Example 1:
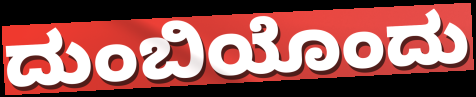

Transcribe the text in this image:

ದುಂಬಿಯೊಂದು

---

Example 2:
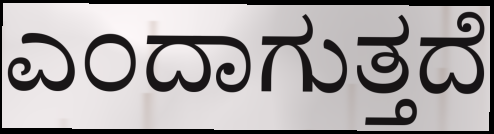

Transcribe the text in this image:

ಎಂದಾಗುತ್ತದೆ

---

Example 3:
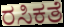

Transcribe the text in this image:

ರಸಿಕತೆ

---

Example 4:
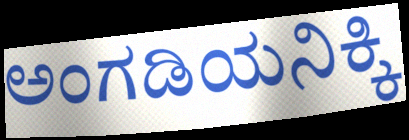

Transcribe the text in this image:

ಅಂಗಡಿಯನಿಕ್ಕಿ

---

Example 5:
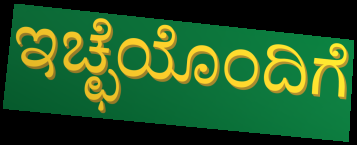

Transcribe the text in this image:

ಇಚ್ಛೆಯೊಂದಿಗೆ